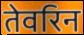
तेवरिन